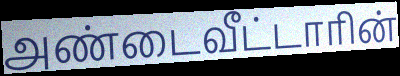
அண்டைவீட்டாரின்